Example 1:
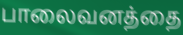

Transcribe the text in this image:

பாலைவனத்தை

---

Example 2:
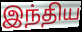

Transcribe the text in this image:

இந்திய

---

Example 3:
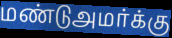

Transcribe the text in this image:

மண்டுஅமர்க்கு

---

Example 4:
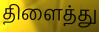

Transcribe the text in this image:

திளைத்து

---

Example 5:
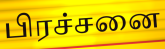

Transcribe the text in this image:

பிரச்சனை